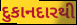
દુકાનદારથી